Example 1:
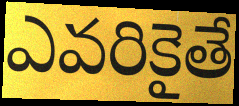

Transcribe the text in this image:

ఎవరికైతే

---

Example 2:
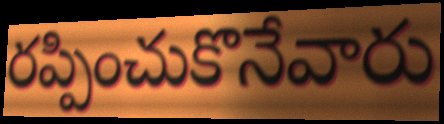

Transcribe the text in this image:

రప్పించుకొనేవారు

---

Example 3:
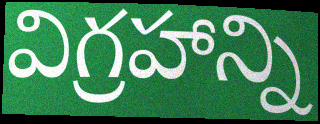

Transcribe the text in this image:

విగ్రహాన్ని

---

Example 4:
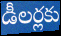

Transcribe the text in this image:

డీలర్లకు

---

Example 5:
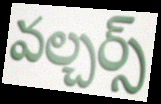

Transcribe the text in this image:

వల్చర్స్